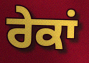
ਰੇਕਾਂ